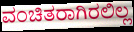
ವಂಚಿತರಾಗಿರಲಿಲ್ಲ